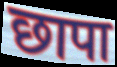
छापा